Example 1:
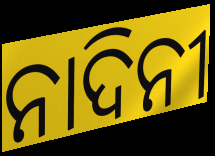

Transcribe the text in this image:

ନାଦିନୀ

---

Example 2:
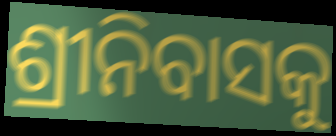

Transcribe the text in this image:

ଶ୍ରୀନିବାସକୁ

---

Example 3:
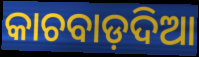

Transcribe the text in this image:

କାଚବାଡ଼ଦିଆ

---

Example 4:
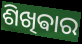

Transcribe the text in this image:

ଶିଖିଵାର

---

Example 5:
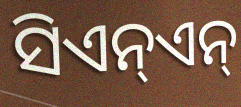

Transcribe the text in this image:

ସିଏନ୍ଏନ୍